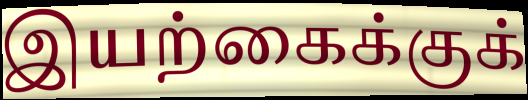
இயற்கைக்குக்